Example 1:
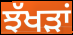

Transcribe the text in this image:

ਝੱਖੜਾਂ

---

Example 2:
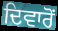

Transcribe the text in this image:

ਦਿਵਾਰੋਂ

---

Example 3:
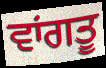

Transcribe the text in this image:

ਵਾਂਗਤੂ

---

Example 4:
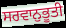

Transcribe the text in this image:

ਸਰਵਾਨੁਭੂਤੀ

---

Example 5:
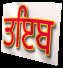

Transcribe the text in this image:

ਤਇਬ